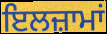
ਇਲਜ਼ਾਮਾਂ